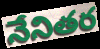
నేనితర